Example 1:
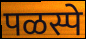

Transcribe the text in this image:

पळस्पे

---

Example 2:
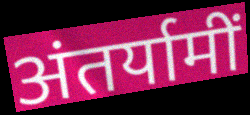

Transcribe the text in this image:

अंतर्यामीं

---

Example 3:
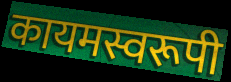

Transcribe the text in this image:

कायमस्वरूपी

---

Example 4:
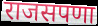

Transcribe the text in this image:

राजसपणा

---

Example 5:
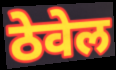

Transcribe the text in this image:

ठेवेल